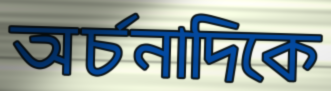
অর্চনাদিকে